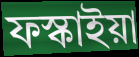
ফস্কাইয়া